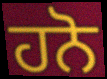
ਹਨੋ